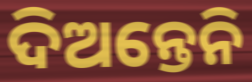
ଦିଅନ୍ତେନି